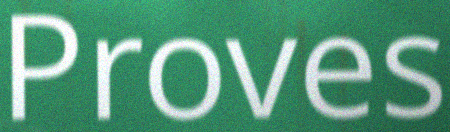
Proves